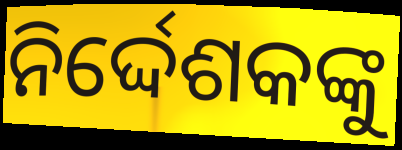
ନିର୍ଦ୍ଦେଶକଙ୍କୁ